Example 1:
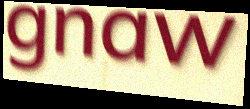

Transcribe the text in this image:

gnaw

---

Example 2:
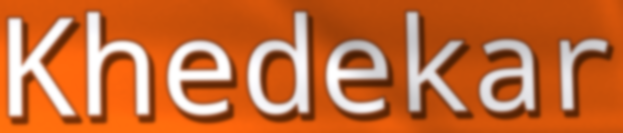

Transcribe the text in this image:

Khedekar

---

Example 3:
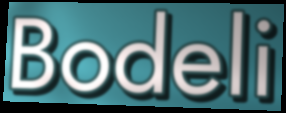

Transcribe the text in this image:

Bodeli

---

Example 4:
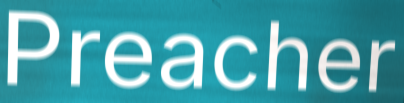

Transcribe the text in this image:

Preacher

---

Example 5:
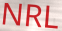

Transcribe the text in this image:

NRL